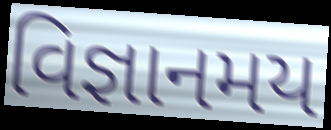
વિજ્ઞાનમય